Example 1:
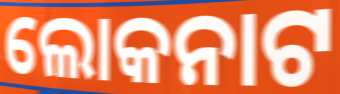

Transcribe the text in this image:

ଲୋକନାଟ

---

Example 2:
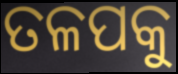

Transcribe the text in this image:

ତଳପକୁ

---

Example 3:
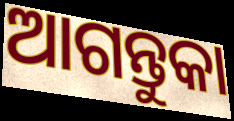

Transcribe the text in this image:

ଆଗନ୍ତୁକା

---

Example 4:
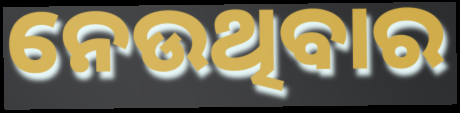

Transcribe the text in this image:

ନେଉଥିବାର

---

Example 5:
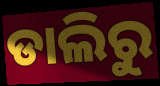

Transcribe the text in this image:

ଡାଲିରୁ